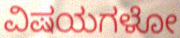
ವಿಷಯಗಳೋ